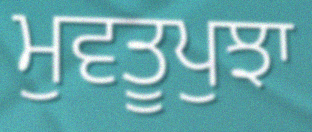
ਮੁਵਤੂਪੁਝਾ